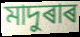
মাদুৰাৰ